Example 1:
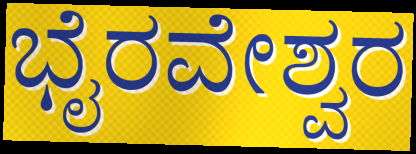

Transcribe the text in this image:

ಭೈರವೇಶ್ವರ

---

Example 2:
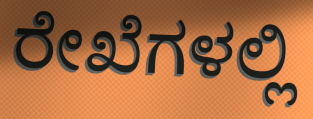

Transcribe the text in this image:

ರೇಖೆಗಳಲ್ಲಿ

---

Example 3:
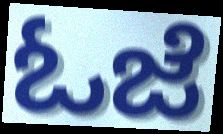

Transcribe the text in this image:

ಓಜೆ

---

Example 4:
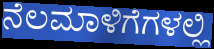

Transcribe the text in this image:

ನೆಲಮಾಳಿಗೆಗಳಲ್ಲಿ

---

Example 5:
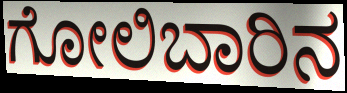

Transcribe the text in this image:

ಗೋಲಿಬಾರಿನ